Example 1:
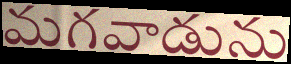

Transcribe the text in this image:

మగవాడును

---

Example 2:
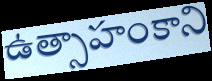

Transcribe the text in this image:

ఉత్సాహంకాని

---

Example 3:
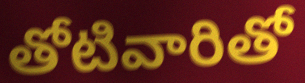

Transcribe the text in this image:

తోటివారితో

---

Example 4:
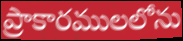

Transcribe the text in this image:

ప్రాకారములలోను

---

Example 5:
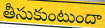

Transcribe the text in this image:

తీసుకుంటుందా